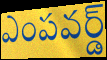
ఎంపవర్డ్